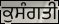
ਕੁਸੰਗਤੀ